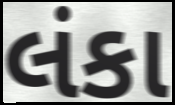
લંકા